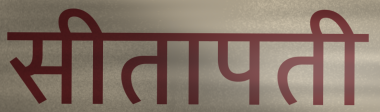
सीतापती